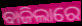
ବାଜିଲାରେ